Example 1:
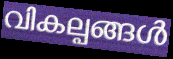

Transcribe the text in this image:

വികല്പങ്ങൾ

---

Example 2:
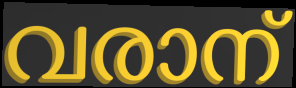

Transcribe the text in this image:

വരാന്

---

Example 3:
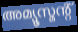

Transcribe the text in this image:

അമ്യൂസ്മന്റ്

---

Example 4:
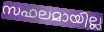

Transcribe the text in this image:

സഫലമായില്ല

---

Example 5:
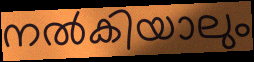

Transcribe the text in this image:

നൽകിയാലും